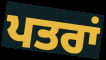
ਪਤਰਾਂ